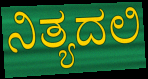
ನಿತ್ಯದಲಿ